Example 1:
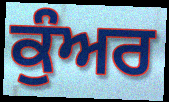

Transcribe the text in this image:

ਕੁੰਅਰ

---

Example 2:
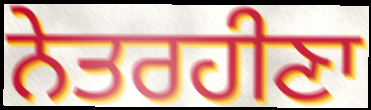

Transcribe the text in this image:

ਨੇਤਰਹੀਣਾ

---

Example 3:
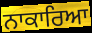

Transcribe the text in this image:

ਨਾਕਾਰਿਆ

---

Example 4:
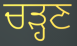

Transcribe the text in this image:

ਚੜ੍ਹਣ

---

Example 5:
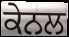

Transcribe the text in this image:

ਕੇਨਲ